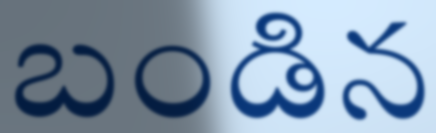
బండిన